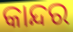
କାନ୍ଦର